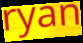
ryan